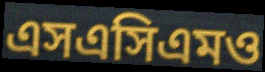
এসএসিএমও